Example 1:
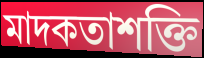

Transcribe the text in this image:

মাদকতাশক্তি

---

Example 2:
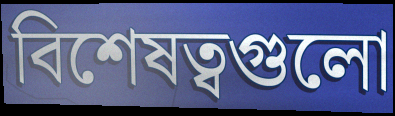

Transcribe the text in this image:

বিশেষত্বগুলো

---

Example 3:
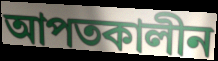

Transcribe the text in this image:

আপতকালীন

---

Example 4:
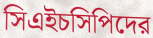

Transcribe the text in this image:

সিএইচসিপিদের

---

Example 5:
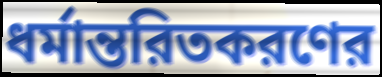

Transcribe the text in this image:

ধর্মান্তরিতকরণের